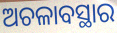
ଅଚଳାବସ୍ଥାର